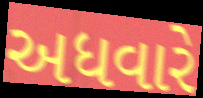
અધવારે